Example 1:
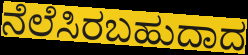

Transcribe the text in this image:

ನೆಲೆಸಿರಬಹುದಾದ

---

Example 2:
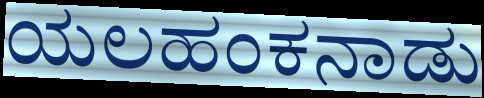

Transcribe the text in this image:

ಯಲಹಂಕನಾಡು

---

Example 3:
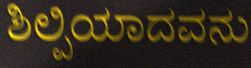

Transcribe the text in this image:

ಶಿಲ್ಪಿಯಾದವನು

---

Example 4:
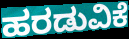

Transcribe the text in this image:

ಹರಡುವಿಕೆ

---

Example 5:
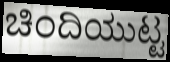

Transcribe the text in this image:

ಚಿಂದಿಯುಟ್ಟ